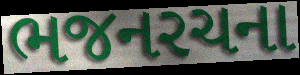
ભજનરચના